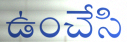
ఉంచేసి